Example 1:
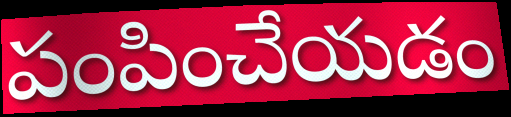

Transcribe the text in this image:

పంపించేయడం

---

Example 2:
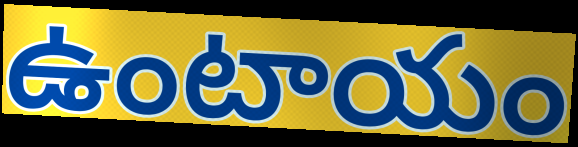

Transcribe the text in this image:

ఉంటాయం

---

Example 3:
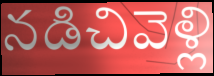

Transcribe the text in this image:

నడిచివెళ్లి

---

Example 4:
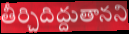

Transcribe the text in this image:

తీర్చిదిద్దుతానని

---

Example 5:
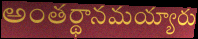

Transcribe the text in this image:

అంతర్థానమయ్యారు